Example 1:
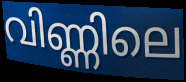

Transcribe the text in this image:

വിണ്ണിലെ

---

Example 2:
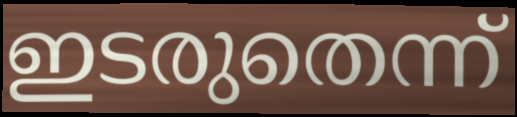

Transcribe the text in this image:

ഇടരുതെന്ന്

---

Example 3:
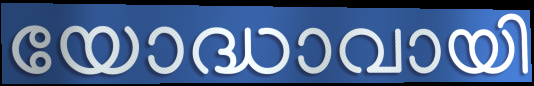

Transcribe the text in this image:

യോദ്ധാവായി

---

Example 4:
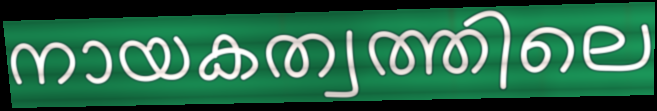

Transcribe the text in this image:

നായകത്വത്തിലെ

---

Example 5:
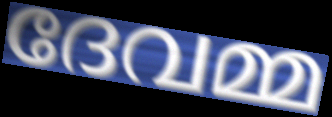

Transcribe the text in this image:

ദേവമ്മ